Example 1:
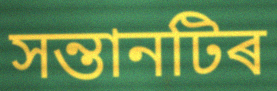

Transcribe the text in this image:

সন্তানটিৰ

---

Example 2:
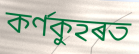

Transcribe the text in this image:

কৰ্ণকুহৰত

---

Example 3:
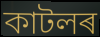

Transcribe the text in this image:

কাটলৰ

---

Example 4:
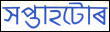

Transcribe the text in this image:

সপ্তাহটোৰ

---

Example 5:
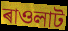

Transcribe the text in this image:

ৰাওলাট